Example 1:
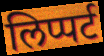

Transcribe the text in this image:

लिप्पर्ट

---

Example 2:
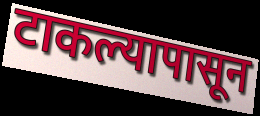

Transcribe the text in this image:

टाकल्यापासून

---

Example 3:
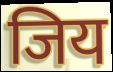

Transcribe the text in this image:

जिय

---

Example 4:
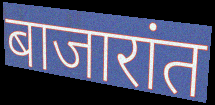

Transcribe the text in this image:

बाजारांत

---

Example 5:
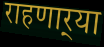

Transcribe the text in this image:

राहणार्या